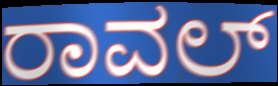
ರಾವಲ್